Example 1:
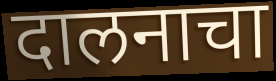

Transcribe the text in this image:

दालनाचा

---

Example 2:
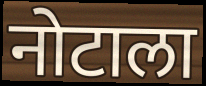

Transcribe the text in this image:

नोटाला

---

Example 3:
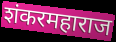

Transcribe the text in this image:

शंकरमहाराज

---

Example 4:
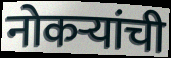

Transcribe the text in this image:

नोकऱ्यांची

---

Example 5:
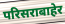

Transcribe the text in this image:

परिसराबाहेर